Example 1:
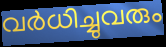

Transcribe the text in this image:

വർധിച്ചുവരും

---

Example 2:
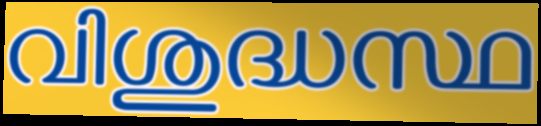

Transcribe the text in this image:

വിശുദ്ധസ്ഥ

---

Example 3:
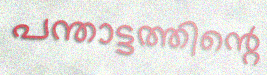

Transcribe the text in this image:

പന്താട്ടത്തിന്റെ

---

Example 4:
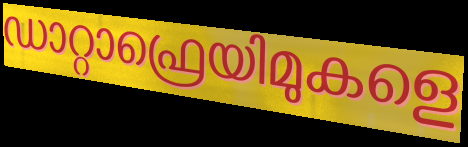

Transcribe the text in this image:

ഡാറ്റാഫ്രെയിമുകളെ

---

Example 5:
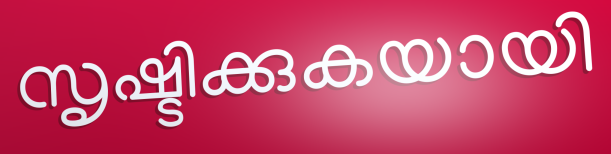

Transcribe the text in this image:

സൃഷ്ടിക്കുകയായി